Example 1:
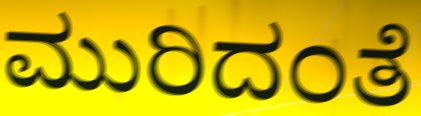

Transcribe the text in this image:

ಮುರಿದಂತೆ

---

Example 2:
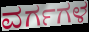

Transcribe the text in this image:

ವರ್ಗಗಳ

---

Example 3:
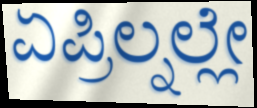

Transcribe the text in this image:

ಏಪ್ರಿಲ್ನಲ್ಲೇ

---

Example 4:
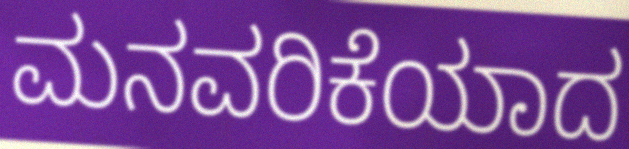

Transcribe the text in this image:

ಮನವರಿಕೆಯಾದ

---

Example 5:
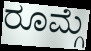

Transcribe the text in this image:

ರೂಮ್ಗೆ